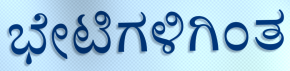
ಭೇಟಿಗಳಿಗಿಂತ